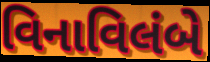
વિનાવિલંબે